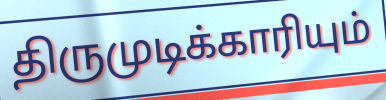
திருமுடிக்காரியும்